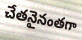
చేతనైనంతగా